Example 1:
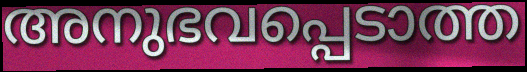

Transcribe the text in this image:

അനുഭവപ്പെടാത്ത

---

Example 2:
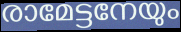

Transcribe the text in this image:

രാമേട്ടനേയും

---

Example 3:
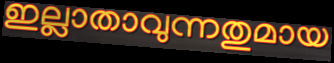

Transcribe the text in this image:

ഇല്ലാതാവുന്നതുമായ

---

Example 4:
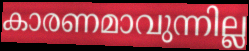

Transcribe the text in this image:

കാരണമാവുന്നില്ല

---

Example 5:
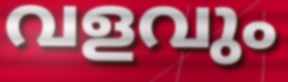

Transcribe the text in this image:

വളവും